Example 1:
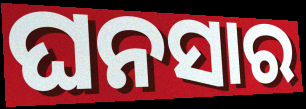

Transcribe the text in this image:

ଘନସାର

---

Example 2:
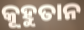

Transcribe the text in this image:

କୂହୁତାନ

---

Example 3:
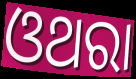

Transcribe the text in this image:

ଓଥରା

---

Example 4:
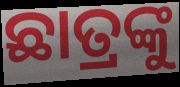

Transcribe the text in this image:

ଛାତ୍ରଙ୍କୁ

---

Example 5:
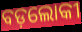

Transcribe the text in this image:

ବଡ଼ଲୋକୀ